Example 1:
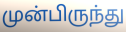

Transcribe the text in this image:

முன்பிருந்து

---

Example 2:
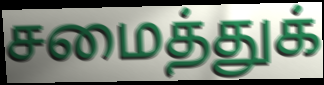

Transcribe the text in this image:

சமைத்துக்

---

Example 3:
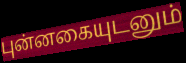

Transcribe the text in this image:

புன்னகையுடனும்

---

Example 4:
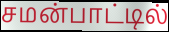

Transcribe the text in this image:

சமன்பாட்டில்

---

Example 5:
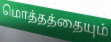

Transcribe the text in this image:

மொத்தத்தையும்